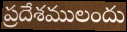
ప్రదేశములందు